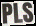
PLS